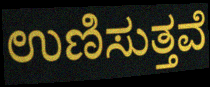
ಉಣಿಸುತ್ತವೆ